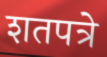
शतपत्रे